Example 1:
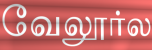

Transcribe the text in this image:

வேலூர்ல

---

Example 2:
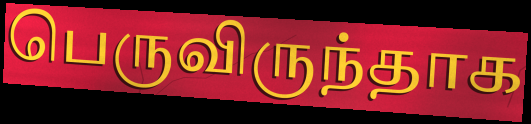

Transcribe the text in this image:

பெருவிருந்தாக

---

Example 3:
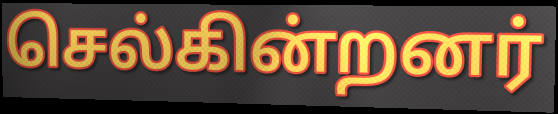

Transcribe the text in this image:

செல்கின்றனர்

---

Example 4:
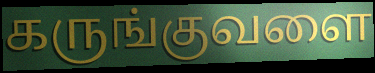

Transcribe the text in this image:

கருங்குவளை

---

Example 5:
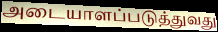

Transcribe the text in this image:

அடையாளப்படுத்துவது